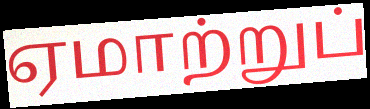
ஏமாற்றுப்